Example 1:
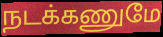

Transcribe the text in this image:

நடக்கணுமே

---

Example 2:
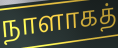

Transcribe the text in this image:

நாளாகத்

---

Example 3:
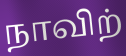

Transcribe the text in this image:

நாவிற்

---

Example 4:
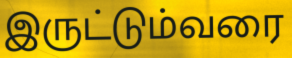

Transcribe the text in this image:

இருட்டும்வரை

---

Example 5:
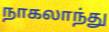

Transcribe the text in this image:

நாகலாந்து